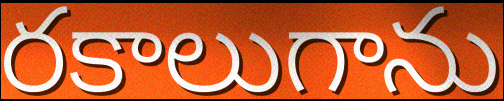
రకాలుగాను